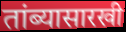
तांब्यासारखी